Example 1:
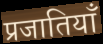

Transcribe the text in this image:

प्रजातियाँ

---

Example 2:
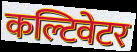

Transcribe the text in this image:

कल्टिवेटर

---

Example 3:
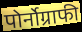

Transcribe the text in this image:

पोर्नोग्राफी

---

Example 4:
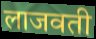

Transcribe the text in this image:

लाजवती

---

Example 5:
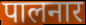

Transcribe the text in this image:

पालनार